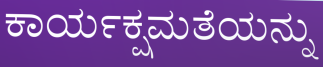
ಕಾರ್ಯಕ್ಷಮತೆಯನ್ನು